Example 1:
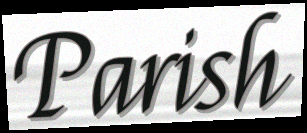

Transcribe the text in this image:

Parish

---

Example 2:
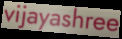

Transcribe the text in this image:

vijayashree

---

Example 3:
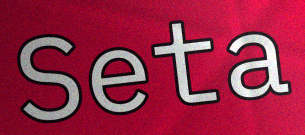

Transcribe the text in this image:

Seta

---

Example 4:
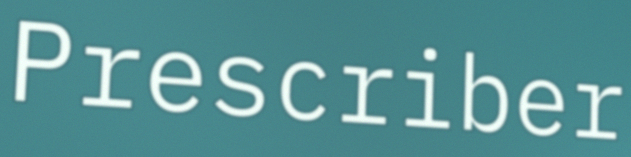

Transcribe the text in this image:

Prescriber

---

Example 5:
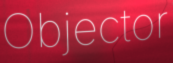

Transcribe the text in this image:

Objector